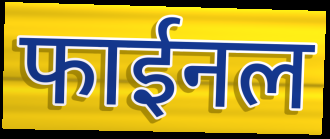
फाईनल